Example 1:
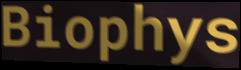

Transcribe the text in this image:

Biophys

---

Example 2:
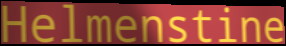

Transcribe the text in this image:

Helmenstine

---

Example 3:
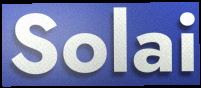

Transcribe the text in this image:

Solai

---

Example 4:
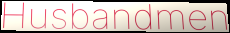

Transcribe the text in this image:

Husbandmen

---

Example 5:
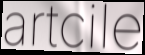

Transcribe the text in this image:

artcile